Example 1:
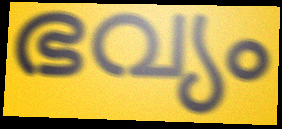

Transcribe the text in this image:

ഭവ്യം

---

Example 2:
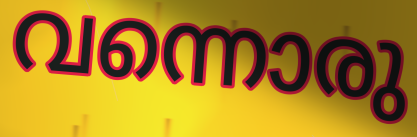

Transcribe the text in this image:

വന്നൊരു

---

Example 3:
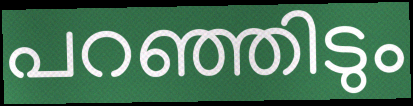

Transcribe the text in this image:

പറഞ്ഞിടും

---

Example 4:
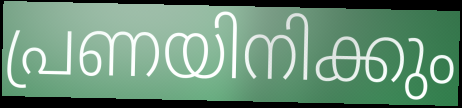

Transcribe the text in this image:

പ്രണയിനിക്കും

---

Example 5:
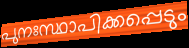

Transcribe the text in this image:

പുനഃസ്ഥാപിക്കപ്പെടും